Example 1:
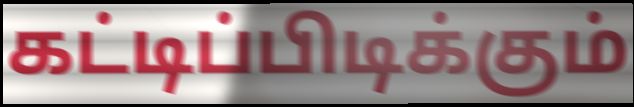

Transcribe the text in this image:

கட்டிப்பிடிக்கும்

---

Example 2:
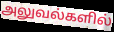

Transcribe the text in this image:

அலுவல்களில்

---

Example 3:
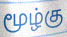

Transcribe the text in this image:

மூழ்கு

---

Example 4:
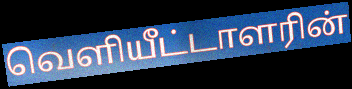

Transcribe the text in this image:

வெளியீட்டாளரின்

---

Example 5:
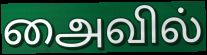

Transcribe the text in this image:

அைவில்